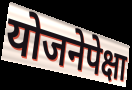
योजनेपेक्षा